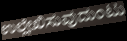
ಉಲ್ಲೇಖಿಸುವುದುಂಟು